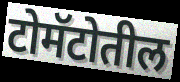
टोमॅटोतील